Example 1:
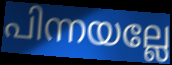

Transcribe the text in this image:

പിന്നയല്ലേ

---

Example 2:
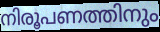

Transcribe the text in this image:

നിരൂപണത്തിനും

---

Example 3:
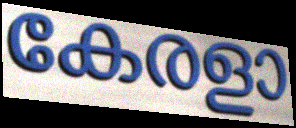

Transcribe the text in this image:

കേരളാ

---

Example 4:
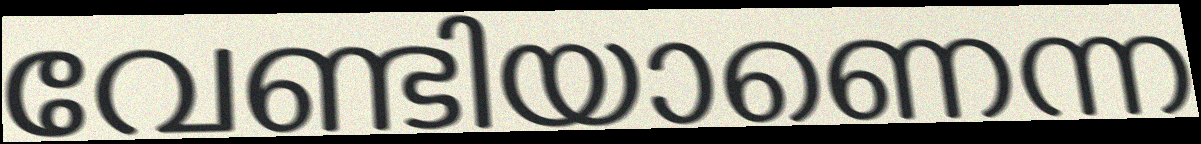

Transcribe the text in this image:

വേണ്ടിയാണെന്ന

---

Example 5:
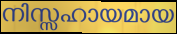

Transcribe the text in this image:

നിസ്സഹായമായ